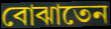
বোঝাতেন